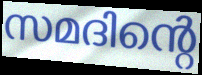
സമദിന്റെ